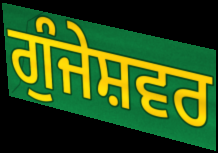
ਗੁੰਜੇਸ਼ਵਰ